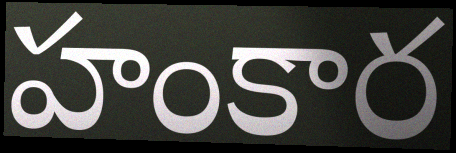
హంకార